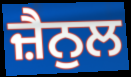
ਜ਼ੈਨੁਲ